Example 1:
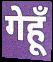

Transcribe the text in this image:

गेहूँ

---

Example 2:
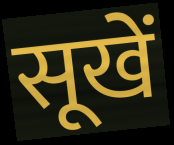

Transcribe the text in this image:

सूखें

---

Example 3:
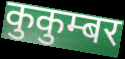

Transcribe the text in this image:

कुकुम्बर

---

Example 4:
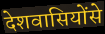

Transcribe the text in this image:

देशवासियोंसे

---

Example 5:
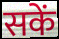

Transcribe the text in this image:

सकें